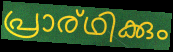
പ്രാര്ഥിക്കും